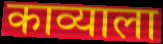
काव्याला